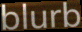
blurb